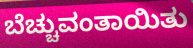
ಬೆಚ್ಚುವಂತಾಯಿತು